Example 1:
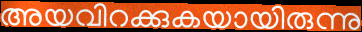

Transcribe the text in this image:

അയവിറക്കുകയായിരുന്നു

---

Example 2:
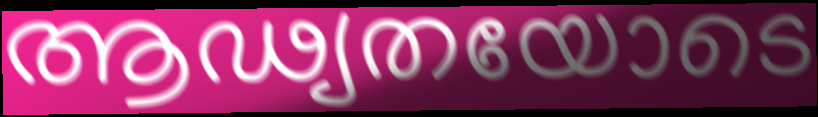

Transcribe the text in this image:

ആഢ്യതയോടെ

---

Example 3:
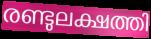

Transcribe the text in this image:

രണ്ടുലക്ഷത്തി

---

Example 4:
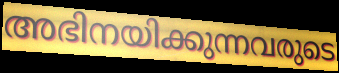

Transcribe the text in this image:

അഭിനയിക്കുന്നവരുടെ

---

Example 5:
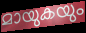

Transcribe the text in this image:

മായുകയും